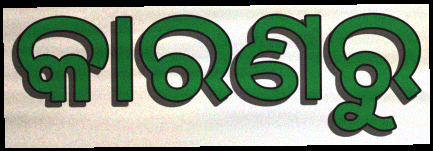
କାରଣରୁ